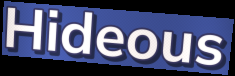
Hideous